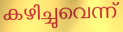
കഴിച്ചുവെന്ന്